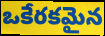
ఒకేరకమైన